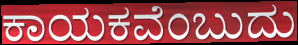
ಕಾಯಕವೆಂಬುದು